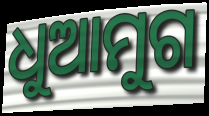
ଧୁଆମୁଗ